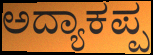
ಅದ್ಯಾಕಪ್ಪ